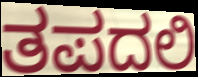
ತಪದಲಿ